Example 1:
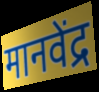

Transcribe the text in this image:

मानवेंद्र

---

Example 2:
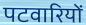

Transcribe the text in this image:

पटवारियों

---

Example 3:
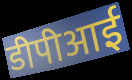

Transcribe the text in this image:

डीपीआई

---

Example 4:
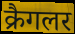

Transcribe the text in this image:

क्रैगलर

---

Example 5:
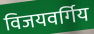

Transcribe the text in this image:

विजयवर्गिय